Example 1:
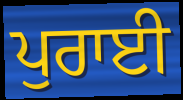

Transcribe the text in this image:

ਪੁਰਾਈ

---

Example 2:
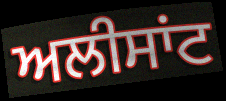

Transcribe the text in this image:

ਅਲੀਸਾਂਟ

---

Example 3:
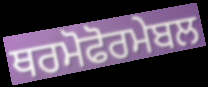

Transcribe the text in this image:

ਥਰਮੋਫੋਰਮੇਬਲ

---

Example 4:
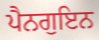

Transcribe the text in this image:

ਪੈਨਗੁਇਨ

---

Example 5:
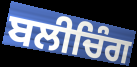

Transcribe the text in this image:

ਬਲੀਚਿੰਗ